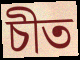
চীত